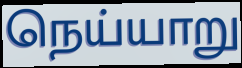
நெய்யாறு